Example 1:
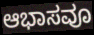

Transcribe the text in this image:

ಆಭಾಸವೂ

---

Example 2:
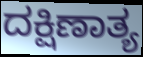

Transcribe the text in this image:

ದಕ್ಷಿಣಾತ್ಯ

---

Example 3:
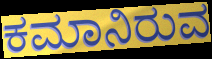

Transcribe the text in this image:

ಕಮಾನಿರುವ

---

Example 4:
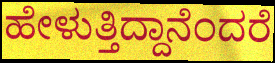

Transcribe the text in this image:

ಹೇಳುತ್ತಿದ್ದಾನೆಂದರೆ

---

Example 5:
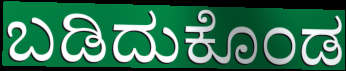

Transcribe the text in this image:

ಬಡಿದುಕೊಂಡ